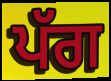
ਪੱਗ